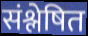
संश्लेषित